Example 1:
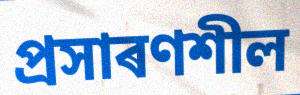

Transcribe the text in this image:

প্ৰসাৰণশীল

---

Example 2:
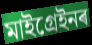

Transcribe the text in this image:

মাইগ্ৰেইনৰ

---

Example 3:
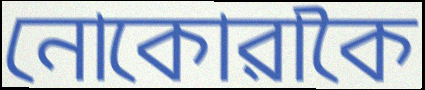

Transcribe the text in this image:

নোকোৱাকৈ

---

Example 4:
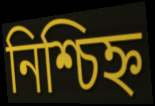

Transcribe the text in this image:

নিশ্চিহ্ন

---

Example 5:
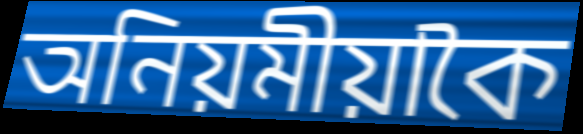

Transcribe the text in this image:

অনিয়মীয়াকৈ